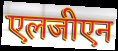
एलजीएन